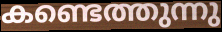
കണ്ടെത്തുന്നു